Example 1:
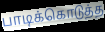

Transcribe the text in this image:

பாடிக்கொடுத்த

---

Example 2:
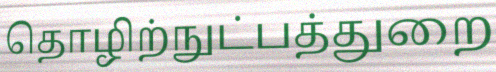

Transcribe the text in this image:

தொழிற்நுட்பத்துறை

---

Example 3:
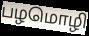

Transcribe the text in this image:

பழமொழி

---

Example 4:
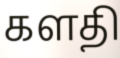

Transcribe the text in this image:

களதி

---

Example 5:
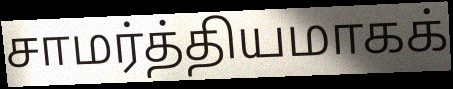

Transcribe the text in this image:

சாமர்த்தியமாகக்